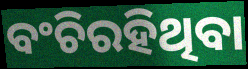
ବଂଚିରହିଥିବା